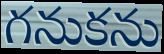
గనుకను